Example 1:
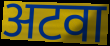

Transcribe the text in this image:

अटवा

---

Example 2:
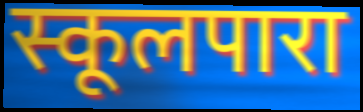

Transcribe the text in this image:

स्कूलपारा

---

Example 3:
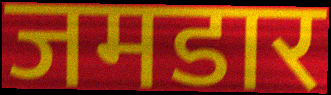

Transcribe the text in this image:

जमडार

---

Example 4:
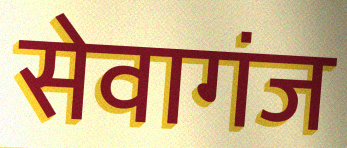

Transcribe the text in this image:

सेवागंज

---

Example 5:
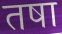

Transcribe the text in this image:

तषा